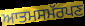
ਆਤਮਸਮੱਰਪਣ